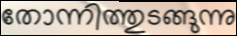
തോന്നിത്തുടങ്ങുന്നു